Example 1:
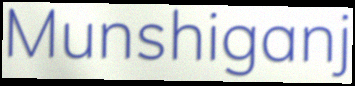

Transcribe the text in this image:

Munshiganj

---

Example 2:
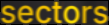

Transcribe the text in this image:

sectors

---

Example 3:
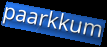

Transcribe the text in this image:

paarkkum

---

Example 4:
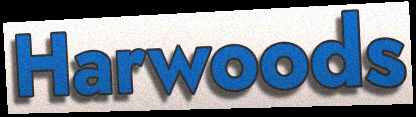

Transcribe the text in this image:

Harwoods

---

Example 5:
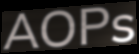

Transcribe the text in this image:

AOPs